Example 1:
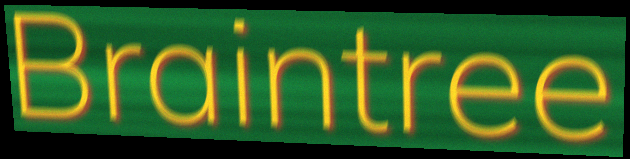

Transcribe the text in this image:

Braintree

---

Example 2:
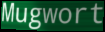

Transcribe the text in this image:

Mugwort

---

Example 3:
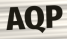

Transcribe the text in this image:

AQP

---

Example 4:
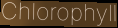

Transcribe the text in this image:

Chlorophyll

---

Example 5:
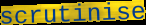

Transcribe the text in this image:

scrutinise